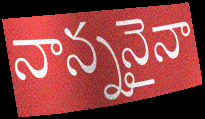
నాన్ననైనా